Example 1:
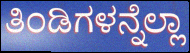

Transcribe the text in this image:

ತಿಂಡಿಗಳನ್ನೆಲ್ಲಾ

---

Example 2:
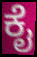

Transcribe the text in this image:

ಕೈ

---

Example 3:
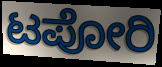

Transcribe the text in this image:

ಟಪೋರಿ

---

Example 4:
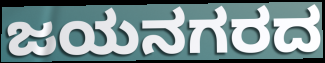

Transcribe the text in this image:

ಜಯನಗರದ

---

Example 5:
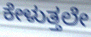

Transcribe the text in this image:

ಕೇಳುತ್ತಲೇ